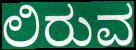
ಲಿರುವ